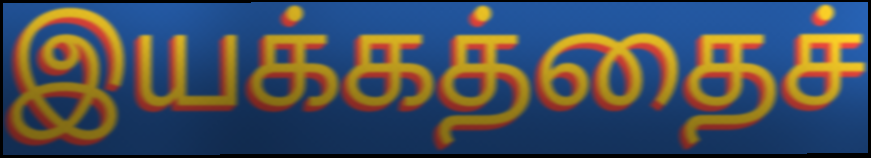
இயக்கத்தைச்